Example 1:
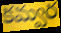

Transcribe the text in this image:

కమ్వర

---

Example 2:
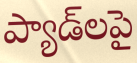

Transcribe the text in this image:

ప్యాడ్‌లపై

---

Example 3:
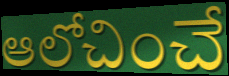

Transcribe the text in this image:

ఆలోచించే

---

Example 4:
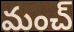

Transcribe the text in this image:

మంచ్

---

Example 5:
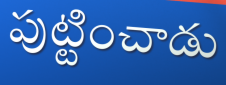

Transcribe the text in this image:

పుట్టించాడు